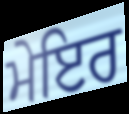
ਮੇਇਰ